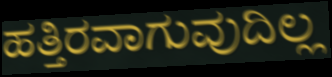
ಹತ್ತಿರವಾಗುವುದಿಲ್ಲ